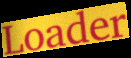
Loader